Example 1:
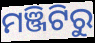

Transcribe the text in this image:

ମଞ୍ଜିଟିରୁ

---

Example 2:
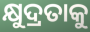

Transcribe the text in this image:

କ୍ଷୁଦ୍ରତାକୁ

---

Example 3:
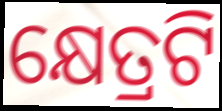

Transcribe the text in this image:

କ୍ଷେତ୍ରଟି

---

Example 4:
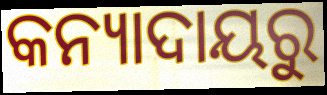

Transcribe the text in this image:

କନ୍ୟାଦାୟରୁ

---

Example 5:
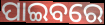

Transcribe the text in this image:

ପାଇବରେ